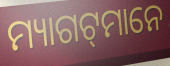
ମ୍ୟାଗଟ୍‌ମାନେ